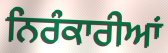
ਨਿਰੰਕਾਰੀਆਂ